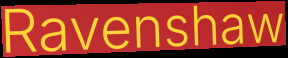
Ravenshaw